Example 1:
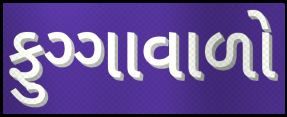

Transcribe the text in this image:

ફુગ્ગાવાળો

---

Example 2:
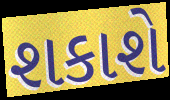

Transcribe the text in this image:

શકાશે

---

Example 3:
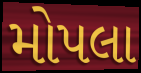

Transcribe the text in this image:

મોપલા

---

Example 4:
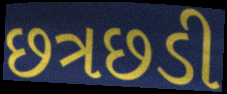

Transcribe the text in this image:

છત્રછડી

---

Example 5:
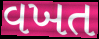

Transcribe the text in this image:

વખત